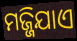
ମଜ୍ଜିଯାଏ